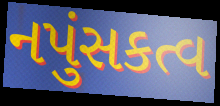
નપુંસકત્વ